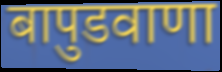
बापुडवाणा